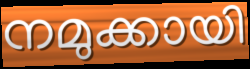
നമുക്കായി